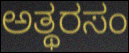
ಅತ್ಥರಸಂ